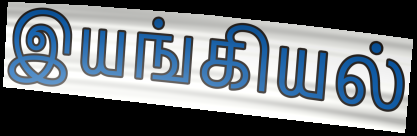
இயங்கியல்